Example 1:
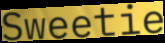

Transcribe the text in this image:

Sweetie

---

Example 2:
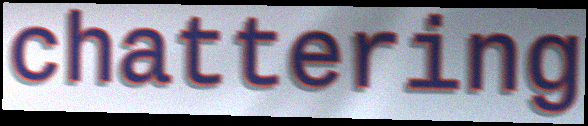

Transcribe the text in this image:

chattering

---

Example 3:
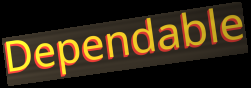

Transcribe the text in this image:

Dependable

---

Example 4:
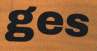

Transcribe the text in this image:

ges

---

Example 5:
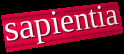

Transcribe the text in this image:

sapientia